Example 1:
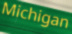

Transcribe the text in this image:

Michigan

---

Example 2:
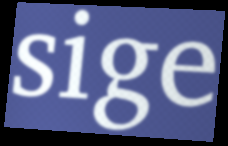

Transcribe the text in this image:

sige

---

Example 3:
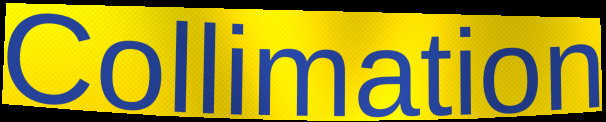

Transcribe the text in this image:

Collimation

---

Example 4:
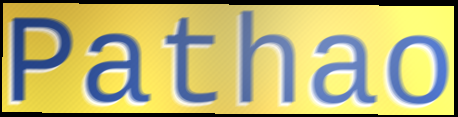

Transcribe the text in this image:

Pathao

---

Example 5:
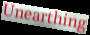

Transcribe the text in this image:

Unearthing